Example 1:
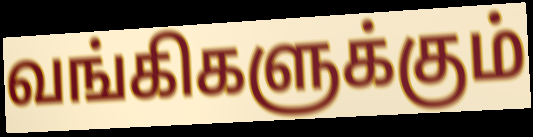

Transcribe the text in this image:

வங்கிகளுக்கும்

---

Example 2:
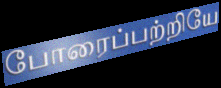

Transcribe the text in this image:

போரைப்பற்றியே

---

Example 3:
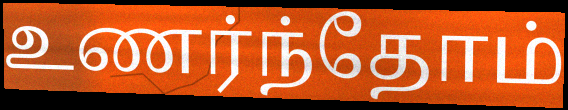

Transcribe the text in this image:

உணர்ந்தோம்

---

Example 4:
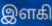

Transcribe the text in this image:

இளகி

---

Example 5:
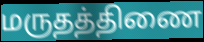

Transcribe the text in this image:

மருதத்திணை